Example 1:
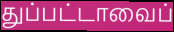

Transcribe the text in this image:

துப்பட்டாவைப்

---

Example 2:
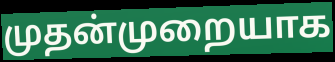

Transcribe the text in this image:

முதன்முறையாக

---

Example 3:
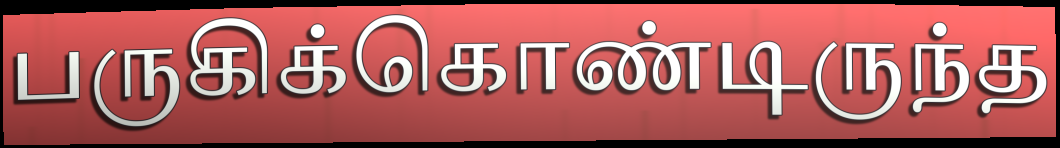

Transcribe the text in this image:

பருகிக்கொண்டிருந்த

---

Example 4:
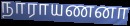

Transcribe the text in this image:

நாராயணனா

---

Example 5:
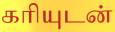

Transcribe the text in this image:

கரியுடன்